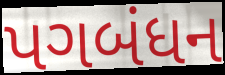
પગબંધન